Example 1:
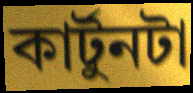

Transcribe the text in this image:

কার্টুনটা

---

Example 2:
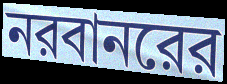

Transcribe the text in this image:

নরবানরের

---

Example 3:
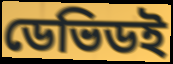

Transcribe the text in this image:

ডেভিডই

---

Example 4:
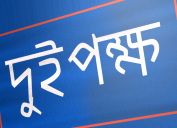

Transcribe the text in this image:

দুইপক্ষ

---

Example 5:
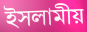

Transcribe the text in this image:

ইসলামীয়